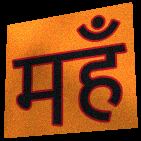
महँ